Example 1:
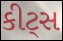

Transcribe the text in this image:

કીટ્સ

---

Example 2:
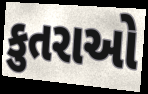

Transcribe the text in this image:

કુતરાઓ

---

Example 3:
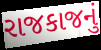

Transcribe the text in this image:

રાજકાજનું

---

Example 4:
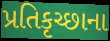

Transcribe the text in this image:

પ્રતિકૃચ્છાના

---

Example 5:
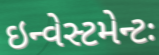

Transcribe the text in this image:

ઇન્વેસ્ટમેન્ટઃ